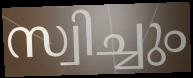
സ്വിച്ചും